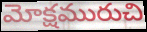
మోక్షమురుచి